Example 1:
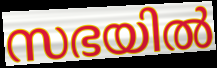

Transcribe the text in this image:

സഭയിൽ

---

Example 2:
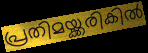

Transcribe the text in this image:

പ്രതിമയ്ക്കരികിൽ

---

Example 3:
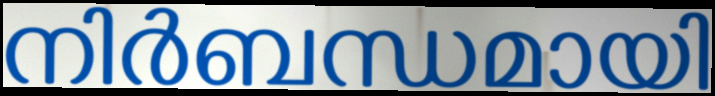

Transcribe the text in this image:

നിർബന്ധമായി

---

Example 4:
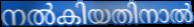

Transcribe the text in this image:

നൽകിയതിനാൽ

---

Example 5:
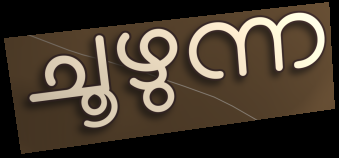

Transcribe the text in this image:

ചൂഴുന്ന